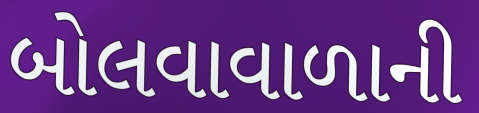
બોલવાવાળાની